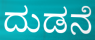
ದುಡನೆ